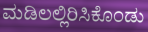
ಮಡಿಲಲ್ಲಿರಿಸಿಕೊಂಡು